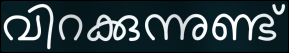
വിറക്കുന്നുണ്ട്